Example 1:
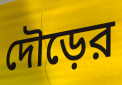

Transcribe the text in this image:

দৌড়ের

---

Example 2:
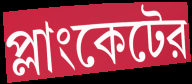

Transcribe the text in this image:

প্লাংকেটের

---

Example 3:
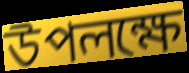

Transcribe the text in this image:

উপলক্ষে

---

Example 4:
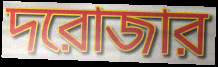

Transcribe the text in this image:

দরোজার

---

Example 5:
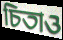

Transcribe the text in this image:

চিতাও